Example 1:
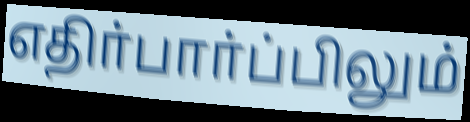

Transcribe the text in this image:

எதிர்பார்ப்பிலும்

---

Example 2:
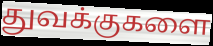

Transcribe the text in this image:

துவக்குகளை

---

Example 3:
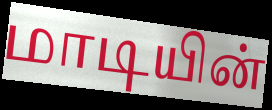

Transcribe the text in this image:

மாடியின்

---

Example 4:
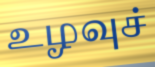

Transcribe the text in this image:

உழவுச்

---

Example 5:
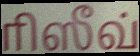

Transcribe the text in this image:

ரிஸீவ்